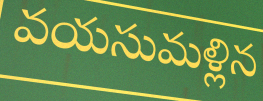
వయసుమళ్లిన